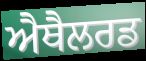
ਐਥੈਲਰਡ